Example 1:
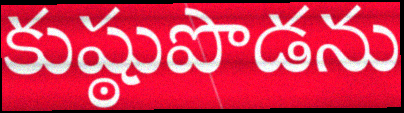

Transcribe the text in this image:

కుష్ఠుపొడను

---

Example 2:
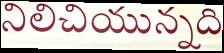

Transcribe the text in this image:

నిలిచియున్నది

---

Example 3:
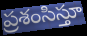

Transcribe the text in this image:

ప్రశంసిస్తూ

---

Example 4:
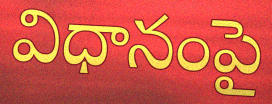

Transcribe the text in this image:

విధానంపై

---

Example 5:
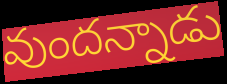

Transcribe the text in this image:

వుందన్నాడు